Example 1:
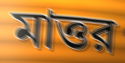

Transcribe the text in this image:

মাত্তর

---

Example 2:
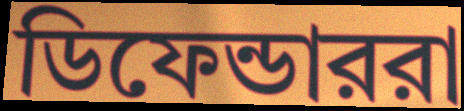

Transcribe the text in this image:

ডিফেন্ডাররা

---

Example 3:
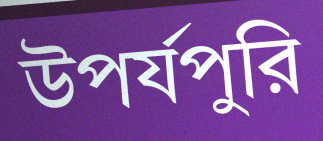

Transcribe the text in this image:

উপর্যপুরি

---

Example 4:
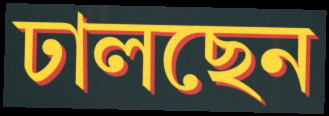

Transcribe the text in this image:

ঢালছেন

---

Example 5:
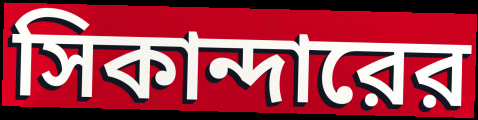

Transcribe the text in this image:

সিকান্দারের